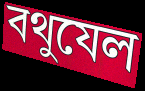
বথুযেল